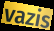
vazis